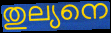
തുല്യനെ